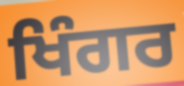
ਖਿੰਗਰ